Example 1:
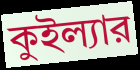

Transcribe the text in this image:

কুইল্যার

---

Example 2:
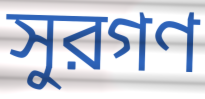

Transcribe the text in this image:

সুরগণ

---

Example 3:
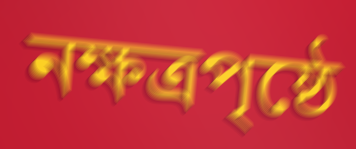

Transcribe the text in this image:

নক্ষত্রপৃষ্ঠে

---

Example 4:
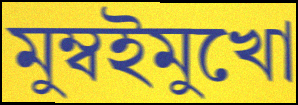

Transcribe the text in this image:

মুম্বইমুখো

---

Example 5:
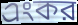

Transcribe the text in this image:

এংকর